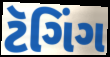
ટૅગિંગ